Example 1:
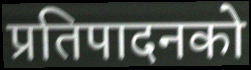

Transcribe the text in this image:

प्रतिपादनको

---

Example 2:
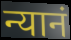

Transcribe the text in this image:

न्यानं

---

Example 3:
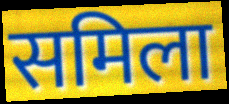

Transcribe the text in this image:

समिला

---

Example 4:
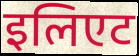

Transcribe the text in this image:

इलिएट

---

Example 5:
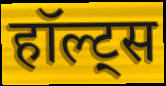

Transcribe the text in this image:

हॉल्ट्स